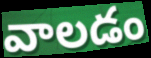
వాలడం